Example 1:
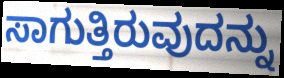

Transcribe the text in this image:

ಸಾಗುತ್ತಿರುವುದನ್ನು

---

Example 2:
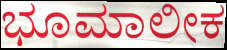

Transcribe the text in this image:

ಭೂಮಾಲೀಕ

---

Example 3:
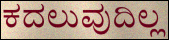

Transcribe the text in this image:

ಕದಲುವುದಿಲ್ಲ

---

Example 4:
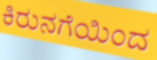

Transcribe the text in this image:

ಕಿರುನಗೆಯಿಂದ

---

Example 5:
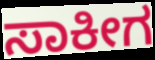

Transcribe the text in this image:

ಸಾಕೀಗ